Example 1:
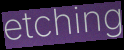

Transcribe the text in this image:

etching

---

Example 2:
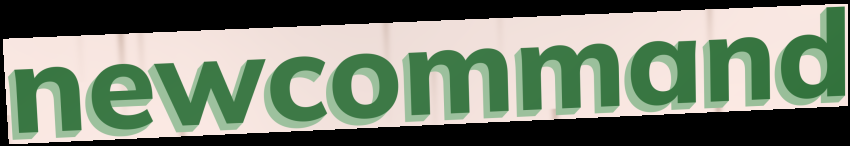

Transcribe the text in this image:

newcommand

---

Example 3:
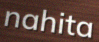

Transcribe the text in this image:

nahita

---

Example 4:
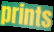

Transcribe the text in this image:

prints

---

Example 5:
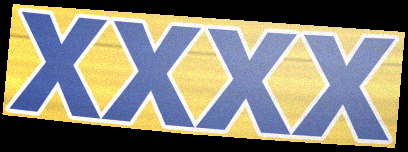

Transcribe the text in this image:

XXXX